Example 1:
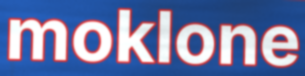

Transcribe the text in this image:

moklone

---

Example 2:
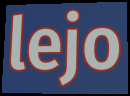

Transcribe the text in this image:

lejo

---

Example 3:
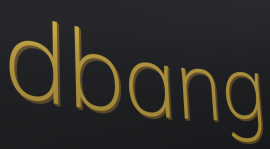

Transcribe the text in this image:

dbang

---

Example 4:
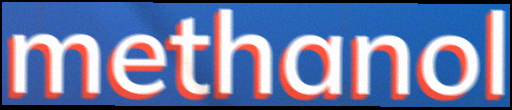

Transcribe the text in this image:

methanol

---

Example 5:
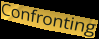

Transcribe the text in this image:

Confronting